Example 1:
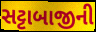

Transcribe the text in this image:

સટ્ટાબાજીની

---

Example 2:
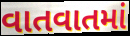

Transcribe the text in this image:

વાતવાતમાં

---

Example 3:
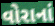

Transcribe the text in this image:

વોરાનાં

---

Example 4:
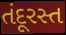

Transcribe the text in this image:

તંદૂરસ્ત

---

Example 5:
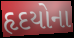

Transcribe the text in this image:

હૃદયોના